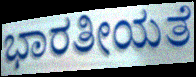
ಭಾರತೀಯತೆ